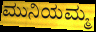
ಮುನಿಯಮ್ಮ